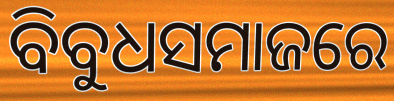
ବିବୁଧସମାଜରେ